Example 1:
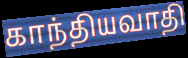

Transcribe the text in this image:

காந்தியவாதி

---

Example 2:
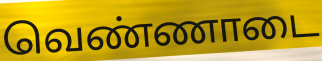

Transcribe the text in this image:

வெண்ணாடை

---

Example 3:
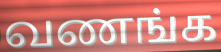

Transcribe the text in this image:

வணங்க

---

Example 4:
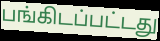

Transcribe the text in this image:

பங்கிடப்பட்டது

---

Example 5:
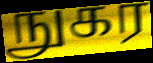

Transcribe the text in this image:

நுகர